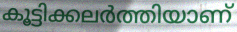
കൂട്ടിക്കലർത്തിയാണ്